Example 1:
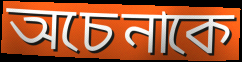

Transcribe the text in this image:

অচেনাকে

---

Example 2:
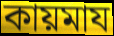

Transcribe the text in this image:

কায়মায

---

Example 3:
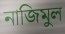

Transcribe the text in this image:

নাজিমুল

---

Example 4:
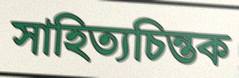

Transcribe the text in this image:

সাহিত্যচিন্তক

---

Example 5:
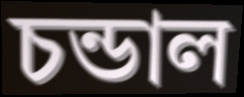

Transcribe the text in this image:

চন্ডাল